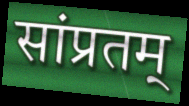
सांप्रतम्